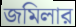
জমিলার